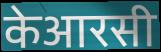
केआरसी